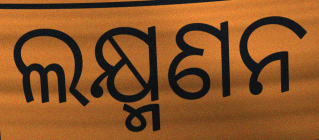
ଲକ୍ଷ୍ମଣନ